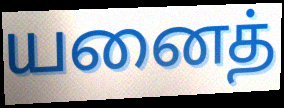
யனைத்